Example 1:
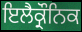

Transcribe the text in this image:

ਇਲੈਕ੍ਰੌਨਿਕ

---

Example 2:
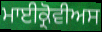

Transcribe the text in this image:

ਮਾਈਕ੍ਰੋਵੀਅਸ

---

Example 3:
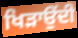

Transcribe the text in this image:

ਖਿੜਾਉਂਦੀ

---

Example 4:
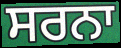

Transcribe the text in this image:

ਸਰਨਾ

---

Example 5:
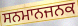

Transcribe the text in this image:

ਸਨਮਾਨਜਨਕ